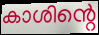
കാശിന്റെ